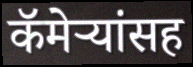
कॅमेऱ्यांसह